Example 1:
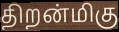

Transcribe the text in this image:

திறன்மிகு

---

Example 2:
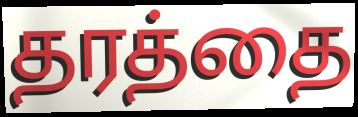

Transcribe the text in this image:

தரத்தை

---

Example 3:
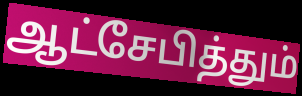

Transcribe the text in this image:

ஆட்சேபித்தும்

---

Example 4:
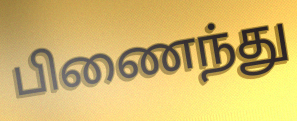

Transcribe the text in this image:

பிணைந்து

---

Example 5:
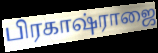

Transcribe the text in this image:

பிரகாஷ்ராஜை